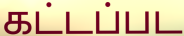
கட்டப்பட